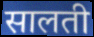
सालती